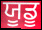
ਯੂਡੂ